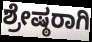
ಶ್ರೇಷ್ಠರಾಗಿ